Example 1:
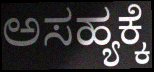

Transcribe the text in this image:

ಅಸಹ್ಯಕ್ಕೆ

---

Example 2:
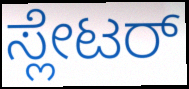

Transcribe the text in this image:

ಸ್ಲೇಟರ್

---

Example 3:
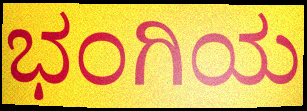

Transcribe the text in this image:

ಭಂಗಿಯ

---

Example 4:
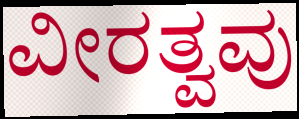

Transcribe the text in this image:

ವೀರತ್ವವು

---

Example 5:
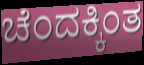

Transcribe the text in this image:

ಚೆಂದಕ್ಕಿಂತ